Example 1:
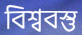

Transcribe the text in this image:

বিশ্ববস্তু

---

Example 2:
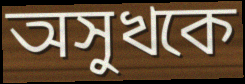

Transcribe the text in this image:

অসুখকে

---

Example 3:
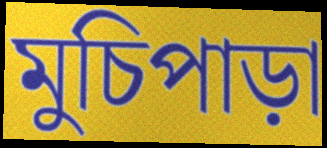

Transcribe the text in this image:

মুচিপাড়া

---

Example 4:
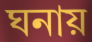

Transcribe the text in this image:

ঘনায়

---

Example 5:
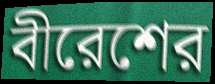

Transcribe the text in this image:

বীরেশের